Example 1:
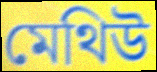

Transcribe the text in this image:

মেথিউ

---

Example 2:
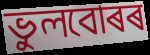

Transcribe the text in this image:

ভুলবোৰৰ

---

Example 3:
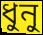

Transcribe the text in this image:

ধুনু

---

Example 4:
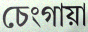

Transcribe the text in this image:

চেংগায়া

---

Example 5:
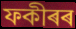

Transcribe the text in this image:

ফকীৰৰ